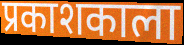
प्रकाशकाला